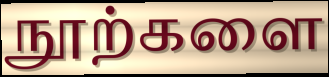
நூற்களை